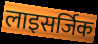
लाइसर्जिक